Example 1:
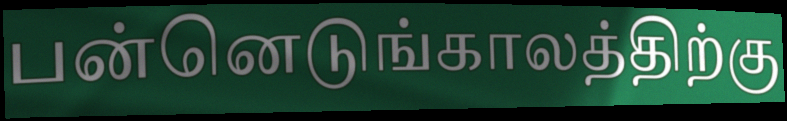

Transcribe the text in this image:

பன்னெடுங்காலத்திற்கு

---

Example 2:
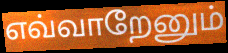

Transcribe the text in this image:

எவ்வாறேனும்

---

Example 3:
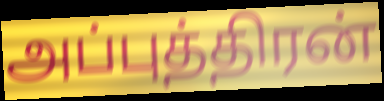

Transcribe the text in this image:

அப்புத்திரன்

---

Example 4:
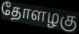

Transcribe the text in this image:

தோளழகு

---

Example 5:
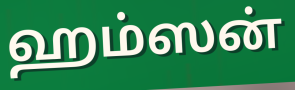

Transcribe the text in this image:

ஹம்ஸன்